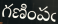
గణింపఁ